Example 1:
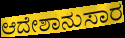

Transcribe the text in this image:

ಆದೇಶಾನುಸಾರ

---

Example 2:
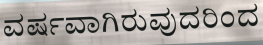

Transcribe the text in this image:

ವರ್ಷವಾಗಿರುವುದರಿಂದ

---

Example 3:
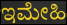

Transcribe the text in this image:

ಇಮೇಹಿ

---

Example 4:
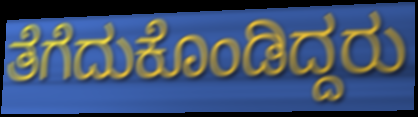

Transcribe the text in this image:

ತೆಗೆದುಕೊಂಡಿದ್ದರು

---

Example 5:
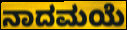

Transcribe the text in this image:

ನಾದಮಯೆ